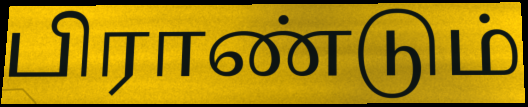
பிராண்டும்